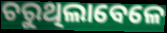
ଚରୁଥିଲାବେଳେ